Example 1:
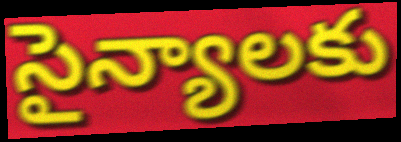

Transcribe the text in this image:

సైన్యాలకు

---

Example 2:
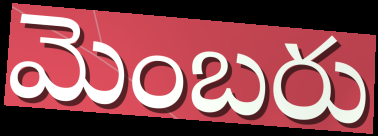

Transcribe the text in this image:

మెంబరు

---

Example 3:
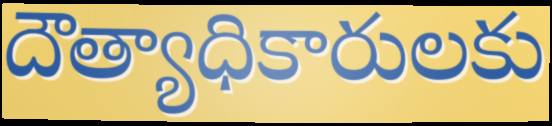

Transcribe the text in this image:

దౌత్యాధికారులకు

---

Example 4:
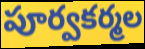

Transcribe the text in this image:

పూర్వకర్మల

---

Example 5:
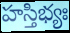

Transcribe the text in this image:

హస్తిభ్యః